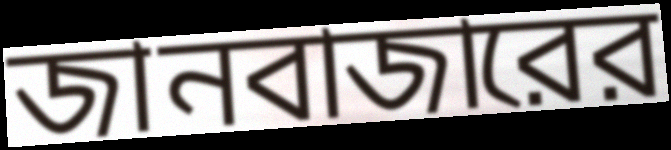
জানবাজারের